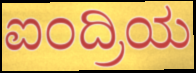
ಐಂದ್ರಿಯ